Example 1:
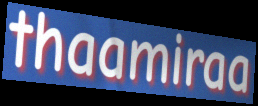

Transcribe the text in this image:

thaamiraa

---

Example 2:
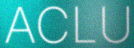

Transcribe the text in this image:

ACLU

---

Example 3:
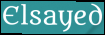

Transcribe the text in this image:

Elsayed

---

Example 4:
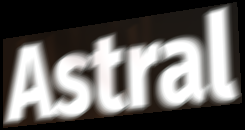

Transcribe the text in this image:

Astral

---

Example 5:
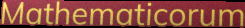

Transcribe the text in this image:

Mathematicorum